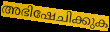
അഭിഷേചിക്കുക